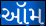
ઑમ